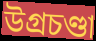
উগ্রচণ্ডা